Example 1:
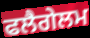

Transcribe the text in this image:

ਫਲੈਗੇਲਮ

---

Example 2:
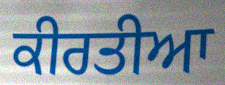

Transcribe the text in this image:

ਕੀਰਤੀਆ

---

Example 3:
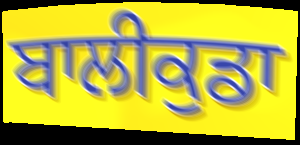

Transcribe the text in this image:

ਬਾਲੀਕੁਡਾ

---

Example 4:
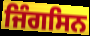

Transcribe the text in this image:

ਜਿੰਗਸਿਨ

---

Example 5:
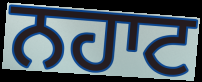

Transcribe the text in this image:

ਨਹਾਟ